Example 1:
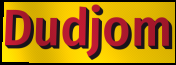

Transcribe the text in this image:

Dudjom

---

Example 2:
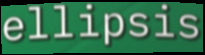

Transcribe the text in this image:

ellipsis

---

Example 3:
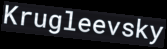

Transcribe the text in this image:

Krugleevsky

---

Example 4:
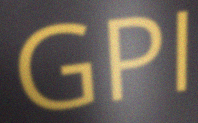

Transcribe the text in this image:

GPI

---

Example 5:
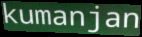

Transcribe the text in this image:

kumanjan